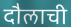
दौलाची